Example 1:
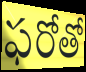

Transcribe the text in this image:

ఫరోతో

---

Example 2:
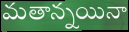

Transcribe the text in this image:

మతాన్నయినా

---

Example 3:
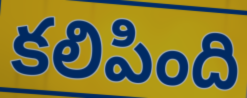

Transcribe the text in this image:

కలిపింది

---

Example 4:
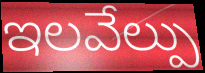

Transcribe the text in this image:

ఇలవేల్పు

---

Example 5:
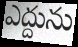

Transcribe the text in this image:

ఎద్దును